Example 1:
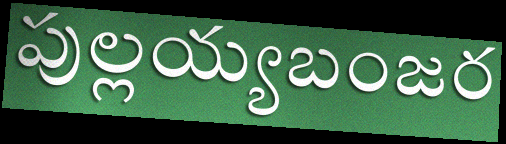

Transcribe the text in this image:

పుల్లయ్యబంజర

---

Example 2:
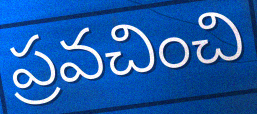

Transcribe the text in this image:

ప్రవచించి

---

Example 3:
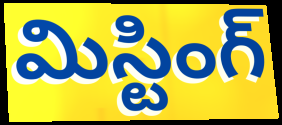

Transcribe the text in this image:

మిస్టింగ్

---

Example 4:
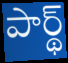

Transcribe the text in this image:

పార్థ్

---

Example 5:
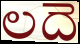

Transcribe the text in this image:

లదె